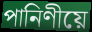
পানিণীয়ে